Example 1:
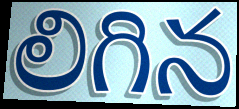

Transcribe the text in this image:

లిగిన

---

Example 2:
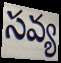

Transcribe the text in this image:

సవ్య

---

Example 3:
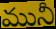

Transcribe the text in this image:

మునీ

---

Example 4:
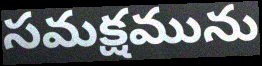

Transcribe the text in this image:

సమక్షమును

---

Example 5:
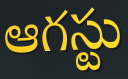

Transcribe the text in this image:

ఆగస్టు